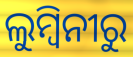
ଲୁମ୍ବିନୀରୁ